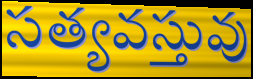
సత్యవస్తువు